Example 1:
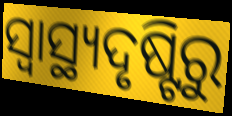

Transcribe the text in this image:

ସ୍ୱାସ୍ଥ୍ୟଦୃଷ୍ଟିରୁ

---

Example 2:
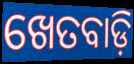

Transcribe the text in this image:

ଖେତବାଡ଼ି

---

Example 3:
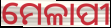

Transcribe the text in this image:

ମେଳାପୀ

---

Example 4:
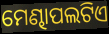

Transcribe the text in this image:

ମେଣ୍ଢାପଲଟିଏ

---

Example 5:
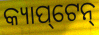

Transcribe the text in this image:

କ୍ୟାପ୍‌ଟେନ୍